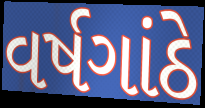
વર્ષગાંઠે